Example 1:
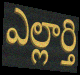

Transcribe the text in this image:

ఎల్లార్తి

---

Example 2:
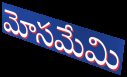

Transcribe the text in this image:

మోసమేమి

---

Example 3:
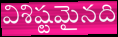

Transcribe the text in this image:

విశిష్టమైనది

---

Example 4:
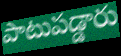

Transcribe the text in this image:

పాటుపడ్డారు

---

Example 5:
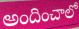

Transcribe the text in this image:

అందించాలో